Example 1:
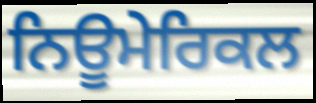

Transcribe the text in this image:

ਨਿਊਮੇਰਿਕਲ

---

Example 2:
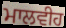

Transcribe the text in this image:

ਮਾਲਵੀਹ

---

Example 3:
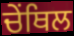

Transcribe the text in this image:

ਚੇਂਥਿਲ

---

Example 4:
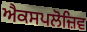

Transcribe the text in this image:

ਐਕਸਪਲੋਜ਼ਿਵ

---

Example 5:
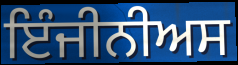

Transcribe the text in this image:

ਇੰਜੀਨੀਅਸ